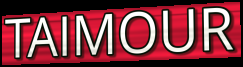
TAIMOUR